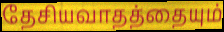
தேசியவாதத்தையும்